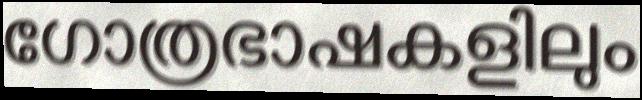
ഗോത്രഭാഷകളിലും